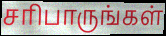
சரிபாருங்கள்